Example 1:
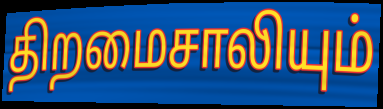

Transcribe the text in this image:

திறமைசாலியும்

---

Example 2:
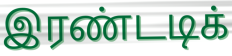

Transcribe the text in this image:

இரண்டடிக்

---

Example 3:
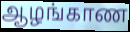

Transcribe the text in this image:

ஆழங்காண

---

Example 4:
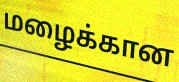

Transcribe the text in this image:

மழைக்கான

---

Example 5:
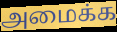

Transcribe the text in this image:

அமைக்க